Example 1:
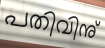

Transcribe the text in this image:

പതിവിനു്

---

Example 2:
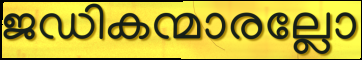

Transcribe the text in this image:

ജഡികന്മാരല്ലോ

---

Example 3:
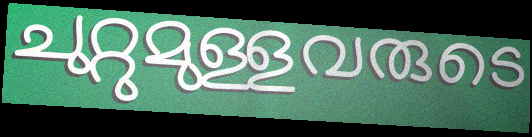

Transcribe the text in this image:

ചുറ്റുമുള്ളവരുടെ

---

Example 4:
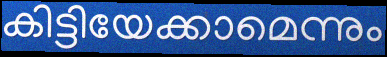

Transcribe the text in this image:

കിട്ടിയേക്കാമെന്നും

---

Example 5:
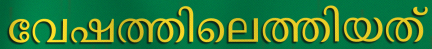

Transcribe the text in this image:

വേഷത്തിലെത്തിയത്